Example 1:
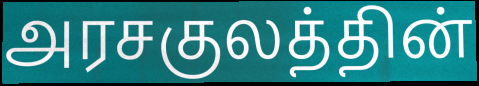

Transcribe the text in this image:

அரசகுலத்தின்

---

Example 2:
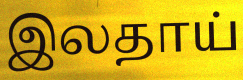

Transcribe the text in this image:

இலதாய்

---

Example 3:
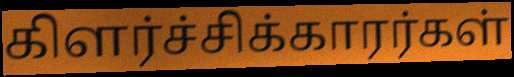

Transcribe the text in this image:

கிளர்ச்சிக்காரர்கள்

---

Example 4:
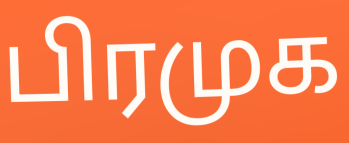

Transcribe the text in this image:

பிரமுக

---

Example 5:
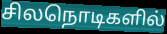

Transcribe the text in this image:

சிலநொடிகளில்